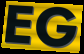
EG